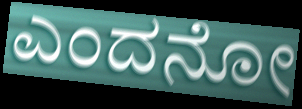
ಎಂದನೋ